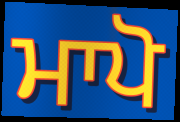
ਮਾਪੋ